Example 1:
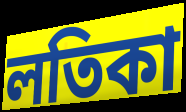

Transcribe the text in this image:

লতিকা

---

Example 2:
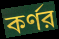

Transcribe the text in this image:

কর্ণর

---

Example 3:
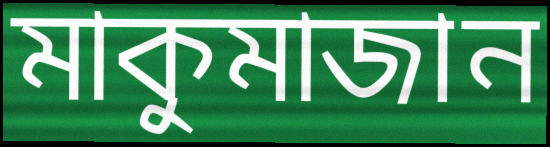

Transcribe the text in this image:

মাকুমাজান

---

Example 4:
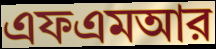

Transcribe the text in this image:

এফএমআর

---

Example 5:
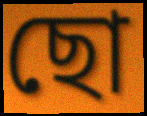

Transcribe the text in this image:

ছো